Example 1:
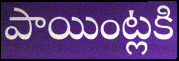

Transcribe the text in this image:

పాయింట్లకి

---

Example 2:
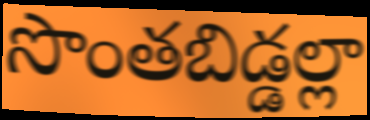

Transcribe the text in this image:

సొంతబిడ్డల్లా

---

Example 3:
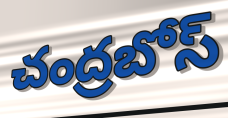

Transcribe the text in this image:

చంద్రబోస్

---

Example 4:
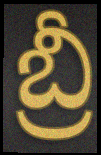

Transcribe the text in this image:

బ్రీ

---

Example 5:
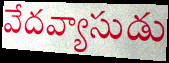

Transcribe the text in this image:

వేదవ్యాసుడు